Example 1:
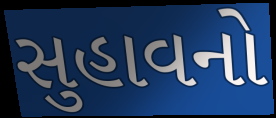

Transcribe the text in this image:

સુહાવનો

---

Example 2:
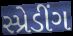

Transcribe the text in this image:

સ્પ્રેડીંગ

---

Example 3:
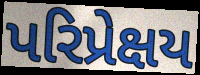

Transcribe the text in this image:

પરિપ્રેક્ષય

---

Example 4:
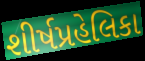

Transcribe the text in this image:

શીર્ષપ્રહેલિકા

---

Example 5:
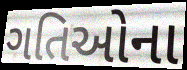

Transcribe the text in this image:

ગતિઓના